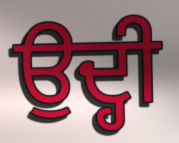
ਉਦ੍ਹੀ